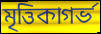
মৃত্তিকাগর্ভ